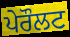
ਪੇਰੌਲਟ